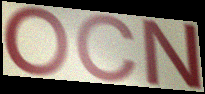
OCN